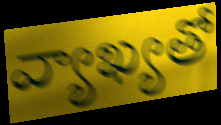
వ్యాఖ్యతో